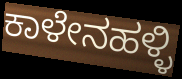
ಕಾಳೇನಹಳ್ಳಿ